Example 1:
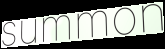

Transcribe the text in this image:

summon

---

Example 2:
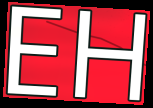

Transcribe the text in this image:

EH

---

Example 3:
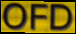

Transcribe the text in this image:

OFD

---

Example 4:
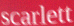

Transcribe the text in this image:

scarlett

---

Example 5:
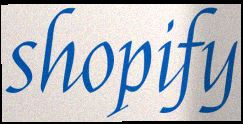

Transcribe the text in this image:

shopify